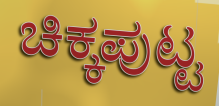
ಚಿಕ್ಕಪುಟ್ಟ